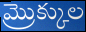
మ్రొక్కుల